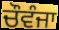
ਚੌਵੰਜਾ